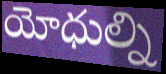
యోధుల్ని